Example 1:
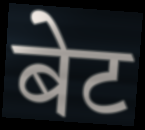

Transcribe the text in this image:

बेट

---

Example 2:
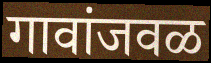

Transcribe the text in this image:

गावांजवळ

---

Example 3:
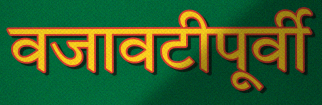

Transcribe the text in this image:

वजावटीपूर्वी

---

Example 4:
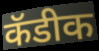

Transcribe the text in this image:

कॅडीक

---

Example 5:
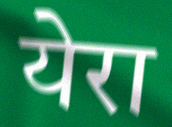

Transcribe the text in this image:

येरा